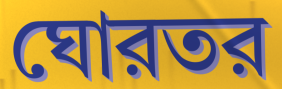
ঘোরতর